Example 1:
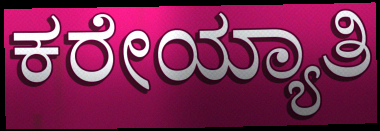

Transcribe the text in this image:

ಕರೇಯ್ಯಾತಿ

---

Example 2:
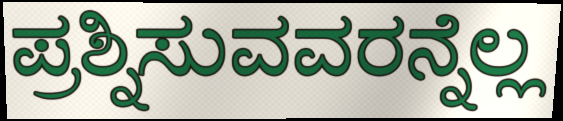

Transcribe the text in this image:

ಪ್ರಶ್ನಿಸುವವರನ್ನೆಲ್ಲ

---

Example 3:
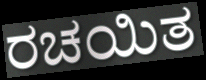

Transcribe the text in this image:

ರಚಯಿತ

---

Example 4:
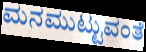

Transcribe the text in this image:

ಮನಮುಟ್ಟುವಂತೆ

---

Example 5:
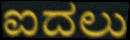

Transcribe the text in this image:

ಐದಲು